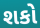
શકો